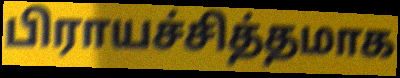
பிராயச்சித்தமாக